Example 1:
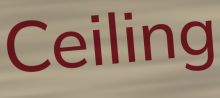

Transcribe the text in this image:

Ceiling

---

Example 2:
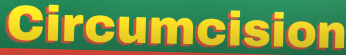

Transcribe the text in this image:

Circumcision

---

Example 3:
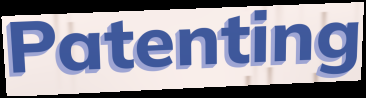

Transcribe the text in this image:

Patenting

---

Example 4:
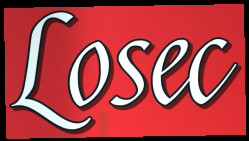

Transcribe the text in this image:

Losec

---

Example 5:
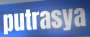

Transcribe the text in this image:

putrasya